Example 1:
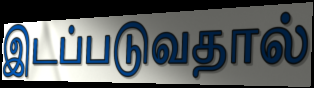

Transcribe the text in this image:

இடப்படுவதால்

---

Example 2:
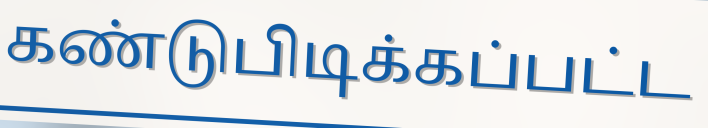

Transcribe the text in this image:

கண்டுபிடிக்கப்பட்ட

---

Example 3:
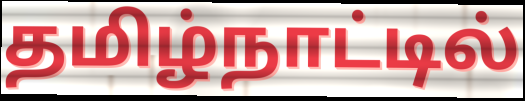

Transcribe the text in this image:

தமிழ்நாட்டில்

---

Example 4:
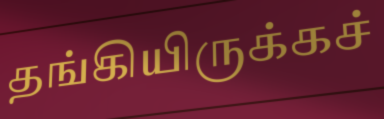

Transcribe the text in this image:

தங்கியிருக்கச்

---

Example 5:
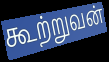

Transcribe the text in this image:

கூற்றுவன்